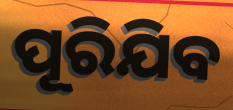
ପୂରିଯିବ